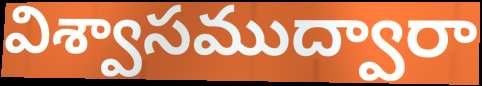
విశ్వాసముద్వారా